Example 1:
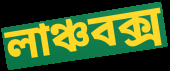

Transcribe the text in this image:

লাঞ্চবক্স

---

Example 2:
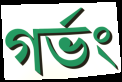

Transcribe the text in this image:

গর্ভং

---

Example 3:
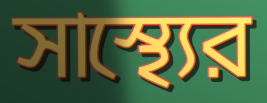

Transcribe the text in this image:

সাস্থ্যের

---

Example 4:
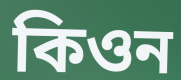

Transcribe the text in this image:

কিওন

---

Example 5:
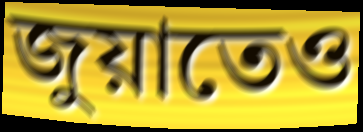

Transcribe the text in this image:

জুয়াতেও